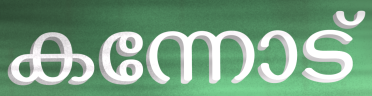
കന്നോട്